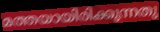
മത്തയായിരിക്കുന്നതു